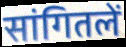
सांगितलें